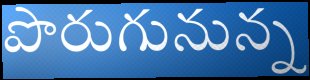
పొరుగునున్న